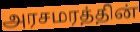
அரசமரத்தின்